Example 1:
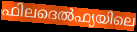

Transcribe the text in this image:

ഫിലദെൽഫ്യയിലെ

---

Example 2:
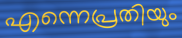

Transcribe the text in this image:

എന്നെപ്രതിയും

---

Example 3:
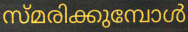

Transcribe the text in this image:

സ്മരിക്കുമ്പോൾ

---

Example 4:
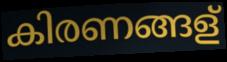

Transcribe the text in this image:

കിരണങ്ങള്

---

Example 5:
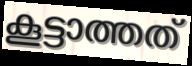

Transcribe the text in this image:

കൂട്ടാത്തത്